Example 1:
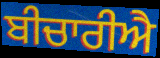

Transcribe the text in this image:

ਬੀਚਾਰੀਐ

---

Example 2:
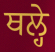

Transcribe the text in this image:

ਥਲ੍ਹੇ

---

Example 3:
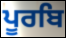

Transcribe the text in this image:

ਪੂਰਬਿ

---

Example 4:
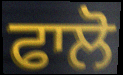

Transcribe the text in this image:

ਫਾਲੋ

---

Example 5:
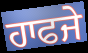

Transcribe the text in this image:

ਹਾਫਜੇ